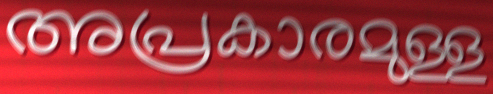
അപ്രകാരമുള്ള